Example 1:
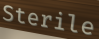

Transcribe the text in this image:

Sterile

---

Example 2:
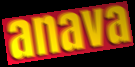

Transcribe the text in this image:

anava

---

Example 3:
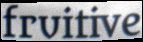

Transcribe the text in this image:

fruitive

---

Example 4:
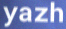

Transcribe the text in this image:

yazh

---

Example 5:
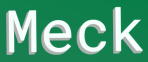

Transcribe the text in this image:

Meck